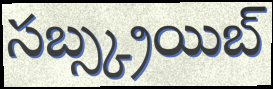
సబ్స్క్రయిబ్